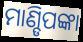
ମାଣ୍ଡିପଙ୍କା